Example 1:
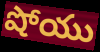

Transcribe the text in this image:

షోయు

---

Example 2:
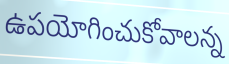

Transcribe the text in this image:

ఉపయోగించుకోవాలన్న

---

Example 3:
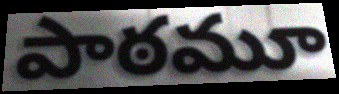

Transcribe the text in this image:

పాఠమూ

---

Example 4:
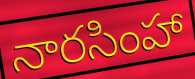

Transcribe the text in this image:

నారసింహా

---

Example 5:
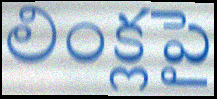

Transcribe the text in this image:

లింక్లపై